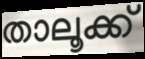
താലൂക്ക്